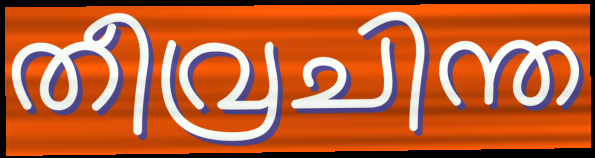
തീവ്രചിന്ത